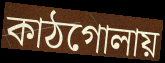
কাঠগোলায়